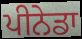
ਪੀਨੇਡਾ